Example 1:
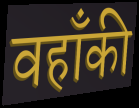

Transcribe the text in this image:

वहाँकी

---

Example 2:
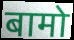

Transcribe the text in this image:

बामो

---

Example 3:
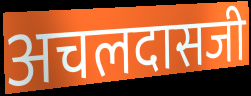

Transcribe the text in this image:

अचलदासजी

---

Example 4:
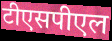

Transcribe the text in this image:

टीएसपीएल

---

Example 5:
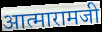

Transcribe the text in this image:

आत्मारामजी